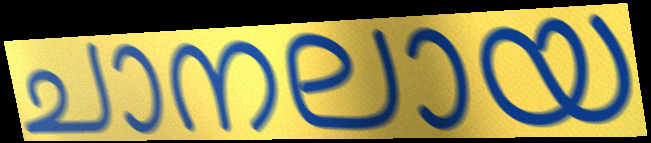
ചാനലായ